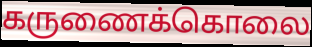
கருணைக்கொலை